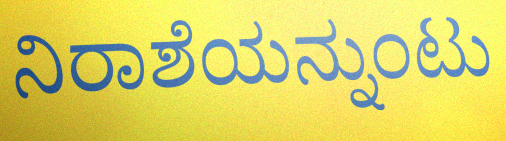
ನಿರಾಶೆಯನ್ನುಂಟು